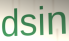
dsin